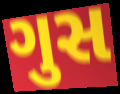
ગુસ